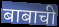
बाबाची